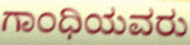
ಗಾಂಧಿಯವರು